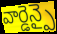
వార్డెన్పై